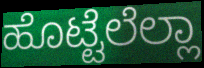
ಹೊಟ್ಟೆಲೆಲ್ಲಾ